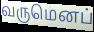
வருமெனப்